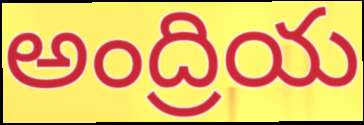
అంద్రియ